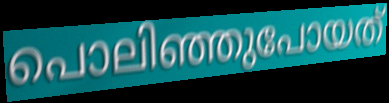
പൊലിഞ്ഞുപോയത്